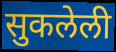
सुकलेली